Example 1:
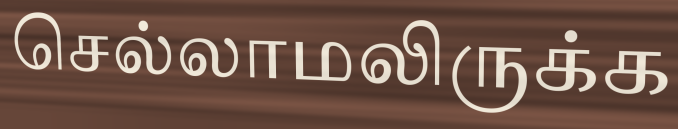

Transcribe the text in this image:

செல்லாமலிருக்க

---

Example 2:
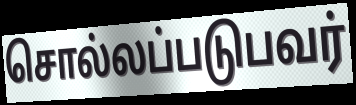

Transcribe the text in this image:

சொல்லப்படுபவர்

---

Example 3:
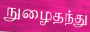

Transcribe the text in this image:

நுழைதந்து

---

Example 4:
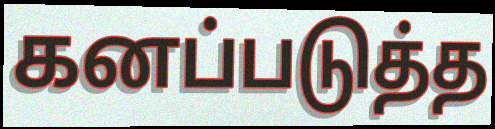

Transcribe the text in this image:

கனப்படுத்த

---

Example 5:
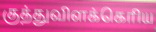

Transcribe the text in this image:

குத்துவிளக்கெரிய